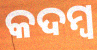
କଦମ୍ୱ